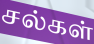
சல்கள்